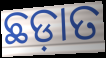
ଛଡ଼ାତ